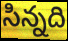
సిన్నది